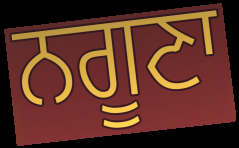
ਨਗੂਣਾ